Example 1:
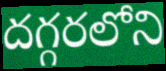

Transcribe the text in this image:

దగ్గరలోని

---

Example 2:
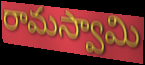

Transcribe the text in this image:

రామస్వామి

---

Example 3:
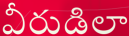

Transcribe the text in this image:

వీరుడిలా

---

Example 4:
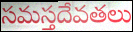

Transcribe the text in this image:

సమస్తదేవతలు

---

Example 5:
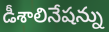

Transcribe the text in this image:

డీశాలినేషన్ను